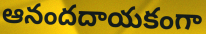
ఆనందదాయకంగా